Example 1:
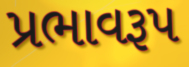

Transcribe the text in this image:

પ્રભાવરૂપ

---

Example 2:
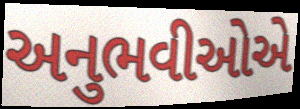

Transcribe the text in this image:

અનુભવીઓએ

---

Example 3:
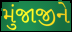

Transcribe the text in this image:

મુંજાજીને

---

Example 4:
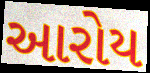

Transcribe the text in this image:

આરોય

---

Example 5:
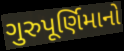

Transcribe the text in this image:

ગુરુપૂર્ણિમાનો